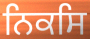
ਨਿਕਸਿ